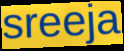
sreeja